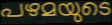
പഴമയുടെ